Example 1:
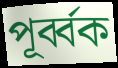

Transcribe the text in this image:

পূর্ব্বক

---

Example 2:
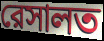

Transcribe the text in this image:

রেসালত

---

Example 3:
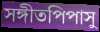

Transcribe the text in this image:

সঙ্গীতপিপাসু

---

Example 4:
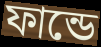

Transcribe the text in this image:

ফান্ডে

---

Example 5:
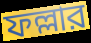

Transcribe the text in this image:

ফল্লার